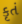
કૃતં